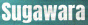
Sugawara